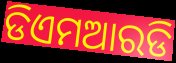
ଡିଏମଆରଡି